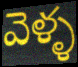
వెళ్ళ